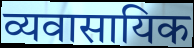
व्यवासायिक